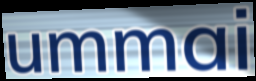
ummai